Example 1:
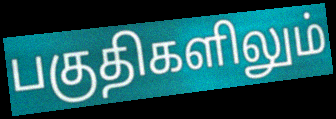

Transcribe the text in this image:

பகுதிகளிலும்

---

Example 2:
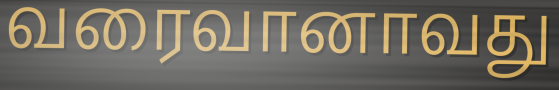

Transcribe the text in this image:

வரைவானாவது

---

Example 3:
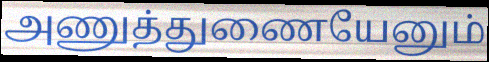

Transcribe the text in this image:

அணுத்துணையேனும்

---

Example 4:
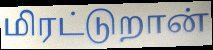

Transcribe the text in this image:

மிரட்டுறான்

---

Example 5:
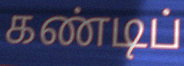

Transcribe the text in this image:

கண்டிப்